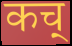
कच्